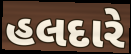
હલદારે